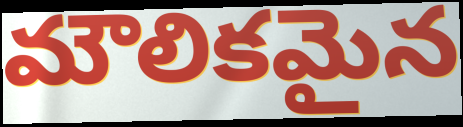
మౌలికమైన